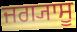
ਜਗ੍ਯਾਸੂ